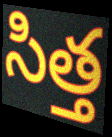
సిత్త